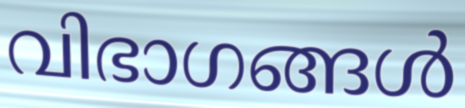
വിഭാഗങ്ങൾ